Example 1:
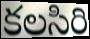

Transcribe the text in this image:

కలసిరి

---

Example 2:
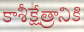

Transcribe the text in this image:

కాశీక్షేత్రానికి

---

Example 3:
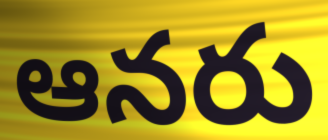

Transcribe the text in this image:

ఆనరు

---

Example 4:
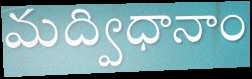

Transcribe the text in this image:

మద్విధానాం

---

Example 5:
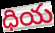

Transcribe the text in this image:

ధియ